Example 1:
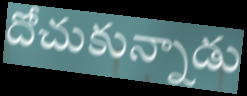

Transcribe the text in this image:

దోచుకున్నాడు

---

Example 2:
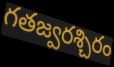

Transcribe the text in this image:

గతజ్వరశ్చిరం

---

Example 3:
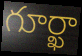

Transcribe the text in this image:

గూర్ఖా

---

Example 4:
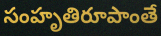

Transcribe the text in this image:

సంహృతిరూపాంతే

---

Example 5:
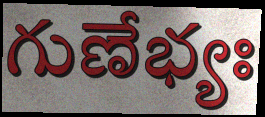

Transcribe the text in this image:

గుణేభ్యః